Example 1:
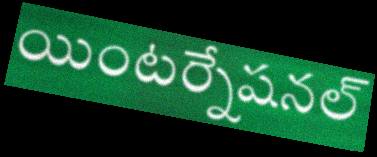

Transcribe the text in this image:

యింటర్నేషనల్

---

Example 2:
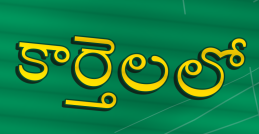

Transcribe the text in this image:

కార్తెలలో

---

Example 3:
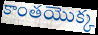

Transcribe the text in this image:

కాంతయొక్క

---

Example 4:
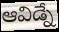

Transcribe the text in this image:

ఆవిడ్నే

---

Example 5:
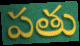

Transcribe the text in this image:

పతు